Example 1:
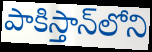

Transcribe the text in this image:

పాకిస్తాన్‌లోని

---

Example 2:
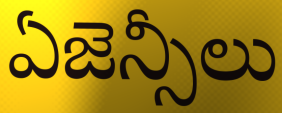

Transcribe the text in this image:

ఏజెన్సీలు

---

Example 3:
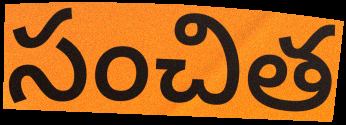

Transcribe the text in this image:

సంచిత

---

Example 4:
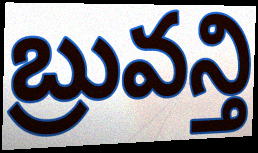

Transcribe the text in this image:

బ్రువన్తి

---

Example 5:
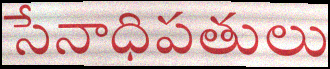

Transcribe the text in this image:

సేనాధిపతులు